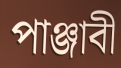
পাঞ্জাবী